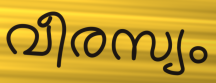
വീരസ്യം